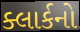
ક્લાર્કનો